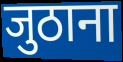
जुठाना